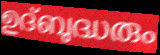
ഉദ്ബുദ്ധരും